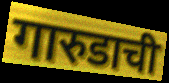
गारुडाची